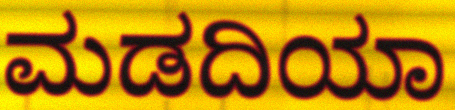
ಮಡದಿಯಾ